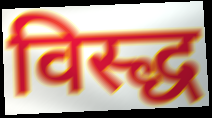
विस्द्ध